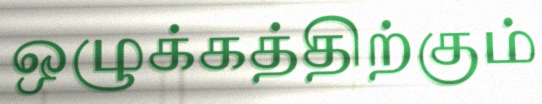
ஒழுக்கத்திற்கும்